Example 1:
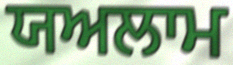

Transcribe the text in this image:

ਯਅਲਾਮ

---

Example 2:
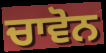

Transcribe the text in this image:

ਚਾਵੋਨ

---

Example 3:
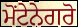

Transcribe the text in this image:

ਮੋਂਟੇਨੇਗਰੋ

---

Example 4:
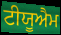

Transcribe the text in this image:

ਟੀਯੂਐਮ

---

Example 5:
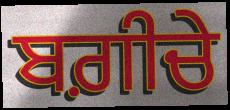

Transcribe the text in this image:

ਬਗ਼ੀਚੇ